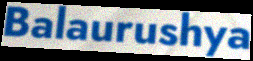
Balaurushya